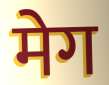
मेग